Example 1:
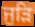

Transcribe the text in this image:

ਜੁੜਿ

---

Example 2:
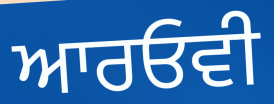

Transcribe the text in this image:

ਆਰਓਵੀ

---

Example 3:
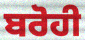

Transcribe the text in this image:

ਬਰੋਹੀ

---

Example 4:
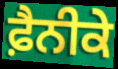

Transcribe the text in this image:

ਫ਼ੈਨੀਕੇ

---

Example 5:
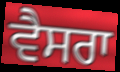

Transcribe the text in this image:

ਵੈਸਰਾ